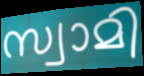
സ്വാമി